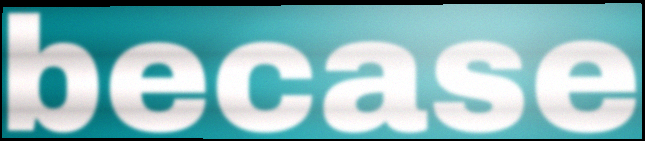
becase